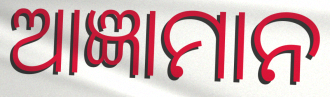
ଆଜ୍ଞାମାନ